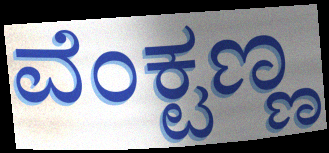
ವೆಂಕ್ಟಣ್ಣ